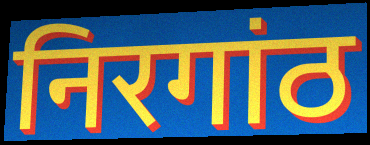
निरगांठ